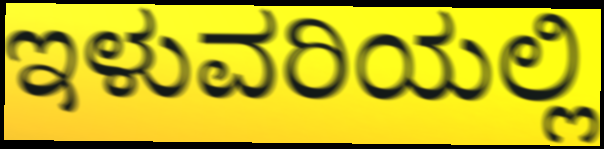
ಇಳುವರಿಯಲ್ಲಿ